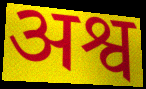
अश्व